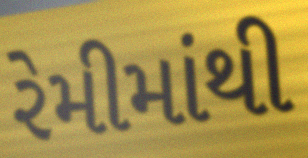
રેમીમાંથી